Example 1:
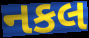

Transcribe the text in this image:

નકલ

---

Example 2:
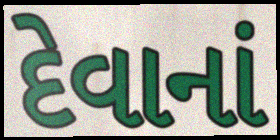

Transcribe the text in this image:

દેવાનાં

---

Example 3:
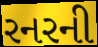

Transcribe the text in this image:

રનરની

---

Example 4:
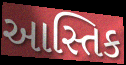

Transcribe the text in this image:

આસ્તિક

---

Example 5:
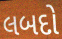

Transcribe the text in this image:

લબદો